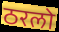
ठरलो